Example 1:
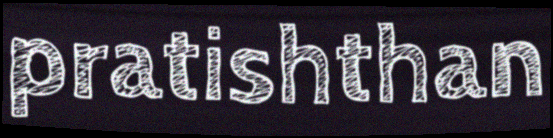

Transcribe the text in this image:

pratishthan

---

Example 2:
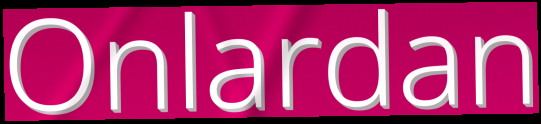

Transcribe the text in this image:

Onlardan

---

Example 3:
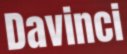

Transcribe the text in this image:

Davinci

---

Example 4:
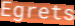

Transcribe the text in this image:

Egrets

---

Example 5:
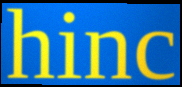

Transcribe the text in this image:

hinc